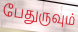
பேதுருவும்